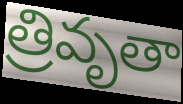
త్రివృతా